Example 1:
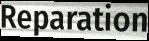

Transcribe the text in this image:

Reparation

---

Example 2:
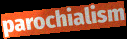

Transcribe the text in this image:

parochialism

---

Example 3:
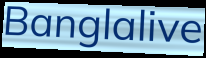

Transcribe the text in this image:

Banglalive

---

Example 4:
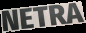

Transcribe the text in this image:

NETRA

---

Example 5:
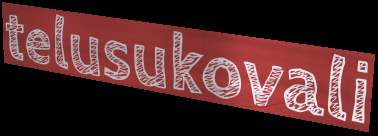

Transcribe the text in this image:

telusukovali